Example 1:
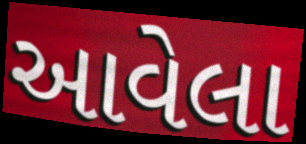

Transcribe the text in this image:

આવેલા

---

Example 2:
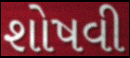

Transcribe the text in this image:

શોષવી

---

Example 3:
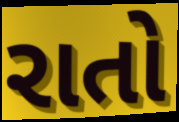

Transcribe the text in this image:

રાતો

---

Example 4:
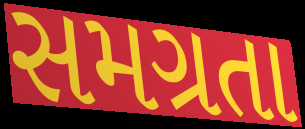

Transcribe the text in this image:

સમગ્રતા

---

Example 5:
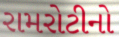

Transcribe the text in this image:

રામરોટીનો